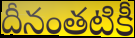
దీనంతటికీ